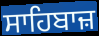
ਸਾਹਿਬਾਜ਼